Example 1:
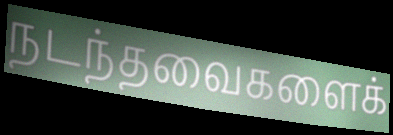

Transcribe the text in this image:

நடந்தவைகளைக்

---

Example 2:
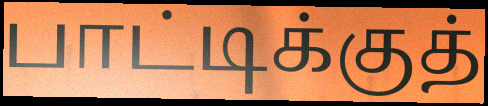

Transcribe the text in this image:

பாட்டிக்குத்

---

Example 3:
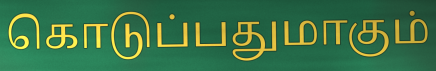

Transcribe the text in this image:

கொடுப்பதுமாகும்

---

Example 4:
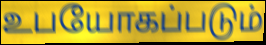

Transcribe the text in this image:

உபயோகப்படும்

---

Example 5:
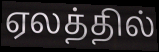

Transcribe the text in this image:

ஏலத்தில்